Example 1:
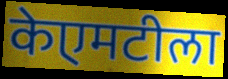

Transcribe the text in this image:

केएमटीला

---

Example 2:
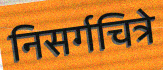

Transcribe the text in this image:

निसर्गचित्रे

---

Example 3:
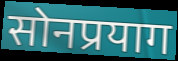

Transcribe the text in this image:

सोनप्रयाग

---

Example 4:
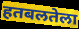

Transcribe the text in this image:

हतबलतेला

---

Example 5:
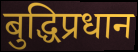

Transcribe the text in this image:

बुद्धिप्रधान